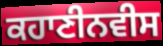
ਕਹਾਣੀਨਵੀਸ